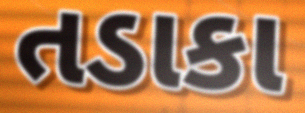
તડાકા